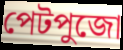
পেটপুজো